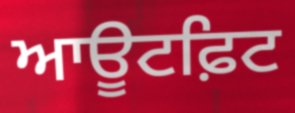
ਆਊਟਫ਼ਿਟ